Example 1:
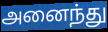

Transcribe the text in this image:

அனைந்து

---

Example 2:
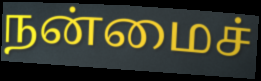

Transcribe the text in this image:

நன்மைச்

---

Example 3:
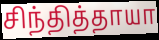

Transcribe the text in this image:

சிந்தித்தாயா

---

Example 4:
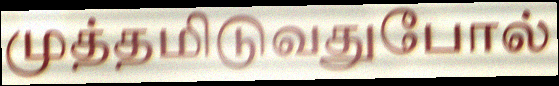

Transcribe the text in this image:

முத்தமிடுவதுபோல்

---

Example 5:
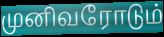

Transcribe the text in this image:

முனிவரோடும்